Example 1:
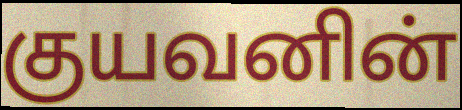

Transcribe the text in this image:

குயவனின்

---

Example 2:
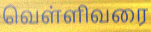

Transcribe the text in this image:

வெள்ளிவரை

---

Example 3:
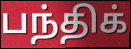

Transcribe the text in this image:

பந்திக்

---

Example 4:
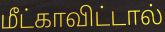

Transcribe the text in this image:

மீட்காவிட்டால்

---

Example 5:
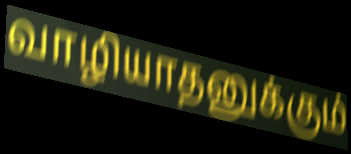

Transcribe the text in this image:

வாழியாதனுக்கும்